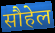
सौहेल